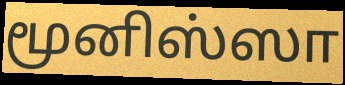
மூனிஸ்ஸா